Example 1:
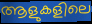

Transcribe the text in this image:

ആളുകളിലെ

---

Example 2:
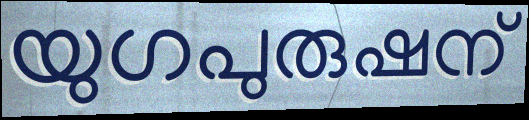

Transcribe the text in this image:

യുഗപുരുഷന്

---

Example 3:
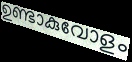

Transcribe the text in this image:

ഉണ്ടാകുവോളം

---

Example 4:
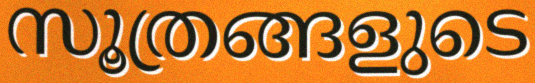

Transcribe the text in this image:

സൂത്രങ്ങളുടെ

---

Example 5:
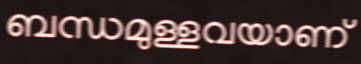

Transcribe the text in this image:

ബന്ധമുള്ളവയാണ്